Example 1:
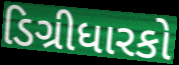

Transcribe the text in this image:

ડિગ્રીધારકો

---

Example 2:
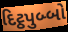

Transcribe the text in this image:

દિટ્ઠપુબ્બો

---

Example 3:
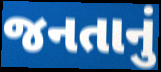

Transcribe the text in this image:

જનતાનું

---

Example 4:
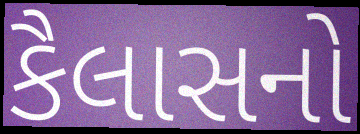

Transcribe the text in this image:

કૈલાસનો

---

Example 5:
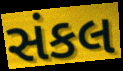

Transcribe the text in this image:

સંકલ